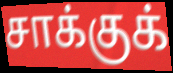
சாக்குக்